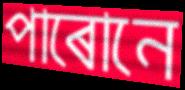
পাৰোনে